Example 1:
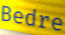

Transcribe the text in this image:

Bedre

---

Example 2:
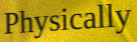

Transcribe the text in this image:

Physically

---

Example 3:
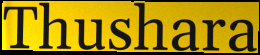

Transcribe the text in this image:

Thushara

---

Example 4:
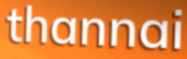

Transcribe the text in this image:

thannai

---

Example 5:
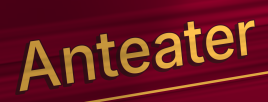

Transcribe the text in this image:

Anteater